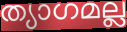
ത്യാഗമല്ല